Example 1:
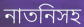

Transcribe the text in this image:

নাতনিসহ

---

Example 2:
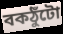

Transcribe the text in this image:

বকঠুঁটো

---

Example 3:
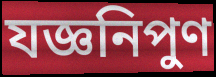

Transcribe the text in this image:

যজ্ঞনিপুণ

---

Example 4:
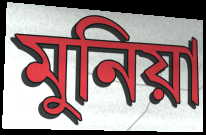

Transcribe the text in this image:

মুনিয়া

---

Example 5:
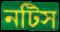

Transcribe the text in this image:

নটিস